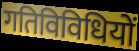
गतिविविधियों